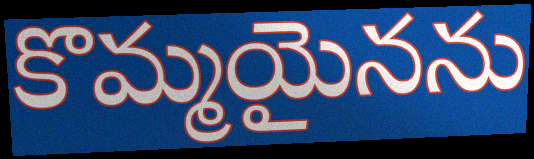
కొమ్మయైనను